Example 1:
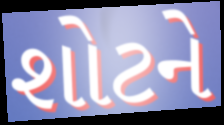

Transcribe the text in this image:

શોટને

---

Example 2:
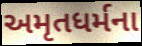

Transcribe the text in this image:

અમૃતધર્મના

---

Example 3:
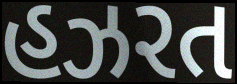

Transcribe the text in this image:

હઝરત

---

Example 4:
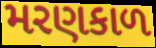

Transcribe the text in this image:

મરણકાળ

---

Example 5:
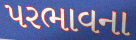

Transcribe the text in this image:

પરભાવના